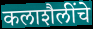
कलाशैलींचे